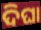
ଦିଘା